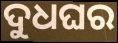
ଦୁଧଘର